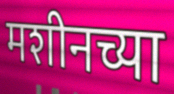
मशीनच्या